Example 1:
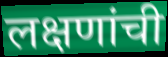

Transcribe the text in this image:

लक्षणांची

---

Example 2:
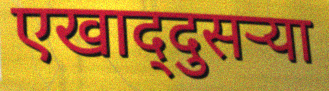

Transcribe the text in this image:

एखाद्‌दुसऱ्या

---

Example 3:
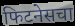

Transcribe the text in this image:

फिटनेसचा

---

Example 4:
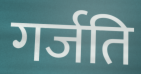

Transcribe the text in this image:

गर्जति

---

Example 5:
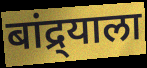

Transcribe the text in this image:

बांद्र्याला